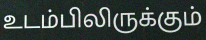
உடம்பிலிருக்கும்